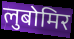
लुबोमिर